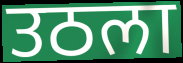
उठला